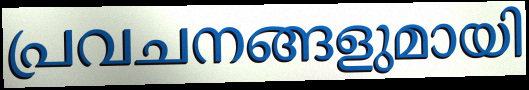
പ്രവചനങ്ങളുമായി